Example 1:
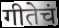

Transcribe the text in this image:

गीतेचं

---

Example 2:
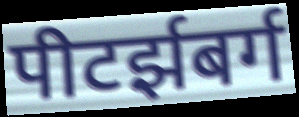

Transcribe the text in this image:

पीटर्झबर्ग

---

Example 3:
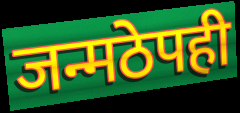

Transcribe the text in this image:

जन्मठेपही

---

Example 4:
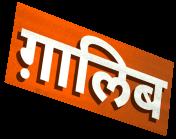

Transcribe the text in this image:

ग़ालिब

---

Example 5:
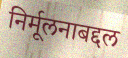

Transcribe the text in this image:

निर्मूलनाबद्दल